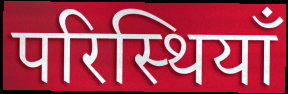
परिस्थियाँ